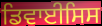
ਡਿਵਾਈਸਿਸ